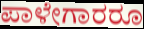
ಪಾಳೇಗಾರರೂ